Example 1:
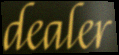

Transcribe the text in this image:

dealer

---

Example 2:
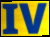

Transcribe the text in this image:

IV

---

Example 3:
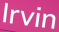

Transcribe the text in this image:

Irvin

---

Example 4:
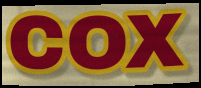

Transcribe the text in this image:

COX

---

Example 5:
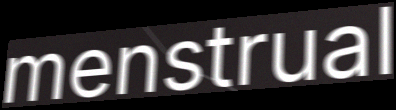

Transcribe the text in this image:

menstrual